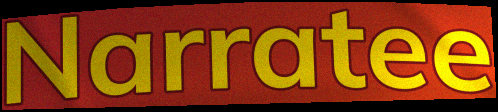
Narratee